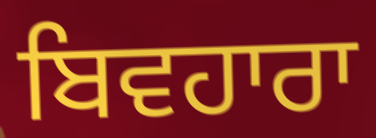
ਬਿਵਹਾਰਾ